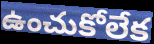
ఉంచుకోలేక